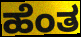
ಹೆಂತ